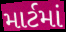
માર્ટમાં